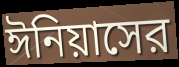
ঈনিয়াসের